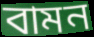
বামন